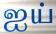
ஐய்